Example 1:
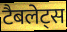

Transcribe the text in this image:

टैबलेट्स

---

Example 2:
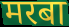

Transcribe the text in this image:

मरबा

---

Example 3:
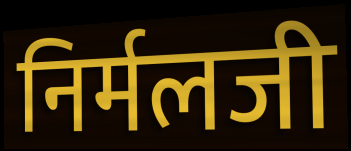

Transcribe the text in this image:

निर्मलजी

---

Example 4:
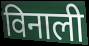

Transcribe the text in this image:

विनाली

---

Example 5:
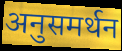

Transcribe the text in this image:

अनुसमर्थन